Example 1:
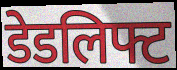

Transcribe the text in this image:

डेडलिफ्ट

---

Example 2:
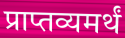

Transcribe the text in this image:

प्राप्तव्यमर्थं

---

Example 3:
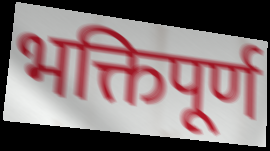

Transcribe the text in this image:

भक्तिपूर्ण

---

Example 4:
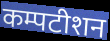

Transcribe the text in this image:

कम्पटीशन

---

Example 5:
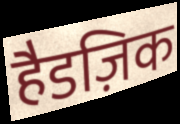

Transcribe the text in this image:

हैडज़िक